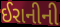
ઈરાનીની